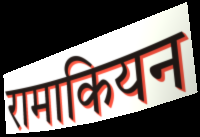
रामाकियन